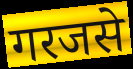
गरजसे